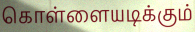
கொள்ளையடிக்கும்